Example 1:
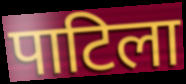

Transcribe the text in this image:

पाटिला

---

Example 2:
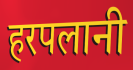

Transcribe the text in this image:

हरपलानी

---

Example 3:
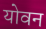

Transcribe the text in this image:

योवन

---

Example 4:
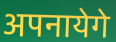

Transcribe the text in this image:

अपनायेगे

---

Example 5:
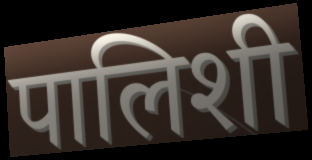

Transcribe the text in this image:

पालिशी